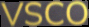
VSCO